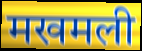
मखमली